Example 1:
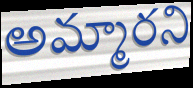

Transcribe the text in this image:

అమ్మారని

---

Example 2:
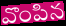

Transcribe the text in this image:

వొంపిన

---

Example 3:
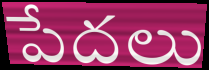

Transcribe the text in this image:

పేదలు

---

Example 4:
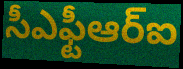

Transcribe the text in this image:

సీఎఫ్టీఆర్ఐ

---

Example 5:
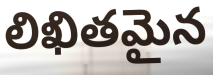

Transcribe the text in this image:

లిఖితమైన